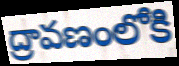
ద్రావణంలోకి